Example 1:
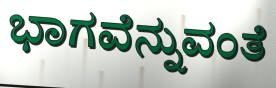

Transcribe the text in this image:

ಭಾಗವೆನ್ನುವಂತೆ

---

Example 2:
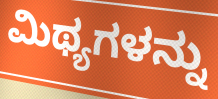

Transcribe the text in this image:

ಮಿಥ್ಯಗಳನ್ನು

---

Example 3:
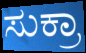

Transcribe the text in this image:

ಸುಕ್ರಾ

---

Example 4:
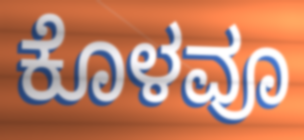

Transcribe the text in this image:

ಕೊಳವೂ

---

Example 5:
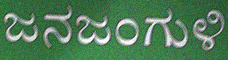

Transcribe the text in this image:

ಜನಜಂಗುಳಿ